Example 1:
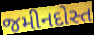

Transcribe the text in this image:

જમીનદોસ્ત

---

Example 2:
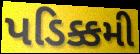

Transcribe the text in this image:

પડિક્કમી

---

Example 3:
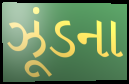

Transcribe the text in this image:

ઝૂંડના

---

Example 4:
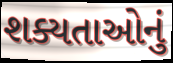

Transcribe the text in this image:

શક્યતાઓનું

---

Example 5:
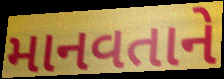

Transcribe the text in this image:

માનવતાને